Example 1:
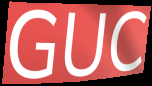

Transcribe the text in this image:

GUC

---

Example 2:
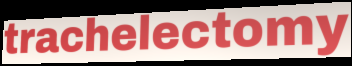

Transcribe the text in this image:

trachelectomy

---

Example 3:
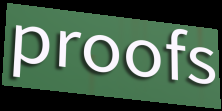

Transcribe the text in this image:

proofs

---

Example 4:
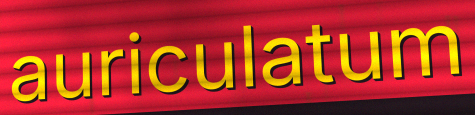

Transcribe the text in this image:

auriculatum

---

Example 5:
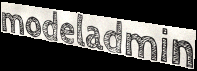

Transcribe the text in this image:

modeladmin